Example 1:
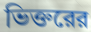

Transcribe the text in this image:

ভিক্তরের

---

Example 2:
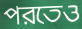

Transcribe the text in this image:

পরতেও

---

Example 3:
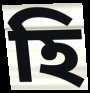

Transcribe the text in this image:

হি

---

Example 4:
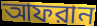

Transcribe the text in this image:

আফরান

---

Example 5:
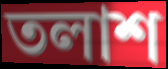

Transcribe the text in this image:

তলাশ